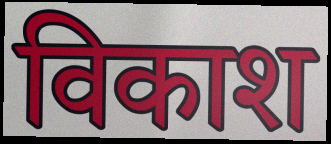
विकाश